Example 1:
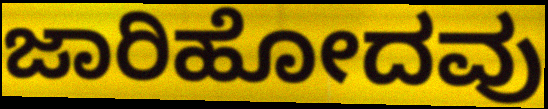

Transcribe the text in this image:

ಜಾರಿಹೋದವು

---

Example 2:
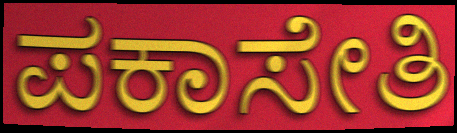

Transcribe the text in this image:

ಪಕಾಸೇತಿ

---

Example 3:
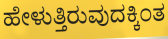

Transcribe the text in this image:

ಹೇಳುತ್ತಿರುವುದಕ್ಕಿಂತ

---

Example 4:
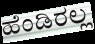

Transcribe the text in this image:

ಹೆಂಡಿರಲ್ಲ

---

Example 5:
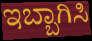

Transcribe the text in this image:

ಇಬ್ಬಾಗಿಸಿ